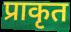
प्राकृत